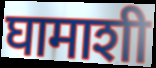
घामाशी